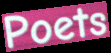
Poets